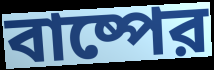
বাষ্পের